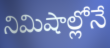
నిమిషాల్లోనే